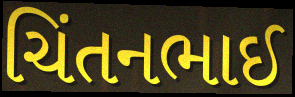
ચિંતનભાઈ